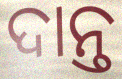
ଦାନ୍ତ